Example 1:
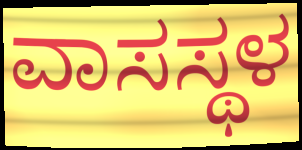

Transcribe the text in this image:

ವಾಸಸ್ಥಳ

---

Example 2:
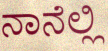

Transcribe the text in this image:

ನಾನೆಲ್ಲಿ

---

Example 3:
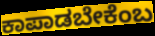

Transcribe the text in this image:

ಕಾಪಾಡಬೇಕೆಂಬ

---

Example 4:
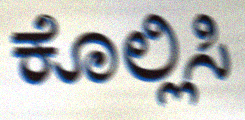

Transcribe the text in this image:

ಕೊಲ್ಲಿಸಿ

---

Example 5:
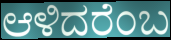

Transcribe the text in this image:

ಆಳಿದರೆಂಬ